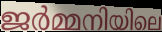
ജർമ്മനിയിലെ